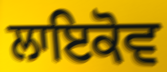
ਲਾਇਕੋਵ